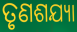
ତୃଣଶଯ୍ୟା